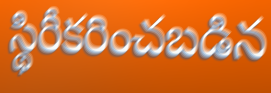
స్థిరీకరించబడిన